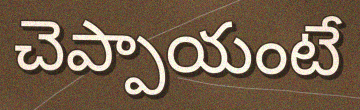
చెప్పాయంటే